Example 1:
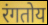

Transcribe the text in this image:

रंगतोय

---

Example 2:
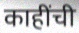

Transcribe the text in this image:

काहींची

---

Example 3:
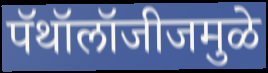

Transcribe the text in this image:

पॅथॉलॉजीजमुळे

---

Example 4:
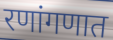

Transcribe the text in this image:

रणांगणात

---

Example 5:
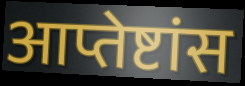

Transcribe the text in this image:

आप्तेष्टांस